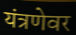
यंत्रणेवर